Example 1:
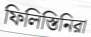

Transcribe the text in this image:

ফিলিস্তিনিরা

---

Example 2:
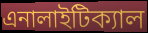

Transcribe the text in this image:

এনালাইটিক্যাল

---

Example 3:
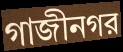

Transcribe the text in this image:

গাজীনগর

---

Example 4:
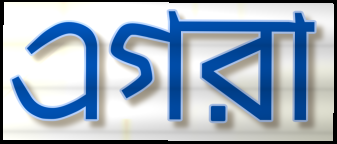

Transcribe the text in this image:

এগরা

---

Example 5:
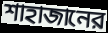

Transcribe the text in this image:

শাহাজানের